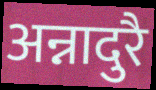
अन्नादुरै